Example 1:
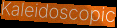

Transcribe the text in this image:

Kaleidoscopic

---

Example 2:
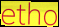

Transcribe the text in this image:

etho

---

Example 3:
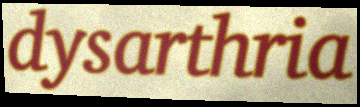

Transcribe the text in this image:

dysarthria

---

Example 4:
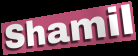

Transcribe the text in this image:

Shamil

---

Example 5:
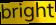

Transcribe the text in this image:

bright